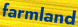
farmland